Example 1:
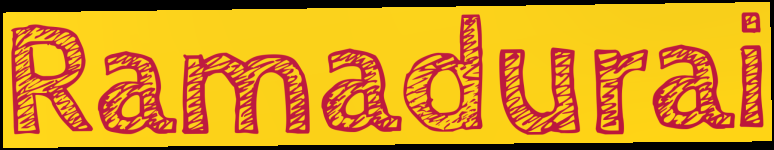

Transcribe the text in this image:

Ramadurai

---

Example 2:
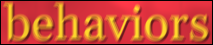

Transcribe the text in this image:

behaviors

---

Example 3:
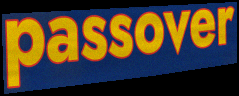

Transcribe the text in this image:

passover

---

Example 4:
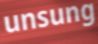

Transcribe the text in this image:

unsung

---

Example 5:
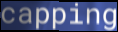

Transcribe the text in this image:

capping